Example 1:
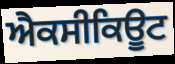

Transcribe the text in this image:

ਐਕਸੀਕਿਊਟ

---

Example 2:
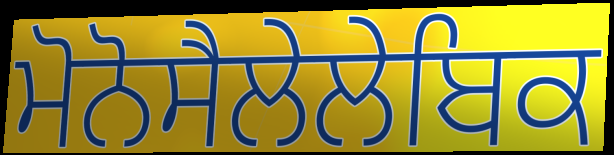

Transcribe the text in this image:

ਮੋਨੋਸੈਲੇਲੇਬਿਕ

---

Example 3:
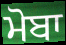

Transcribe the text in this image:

ਮੋਬਾ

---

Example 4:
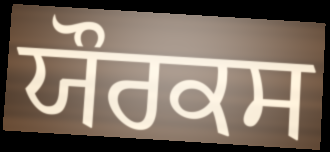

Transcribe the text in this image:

ਯੌਰਕਸ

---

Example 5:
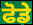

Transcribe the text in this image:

ਫੋਡੇ